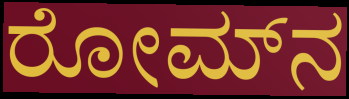
ರೋಮ್‍ನ